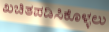
ಖಚಿತಪಡಿಸಿಕೊಳ್ಳಲು